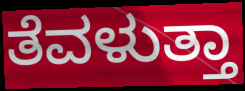
ತೆವಳುತ್ತಾ